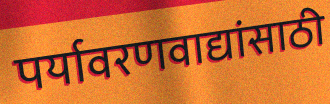
पर्यावरणवाद्यांसाठी